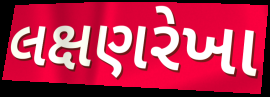
લક્ષણરેખા